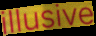
illusive